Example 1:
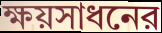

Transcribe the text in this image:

ক্ষয়সাধনের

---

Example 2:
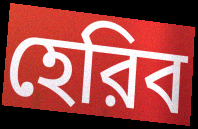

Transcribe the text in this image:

হেরিব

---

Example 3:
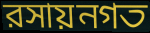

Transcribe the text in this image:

রসায়নগত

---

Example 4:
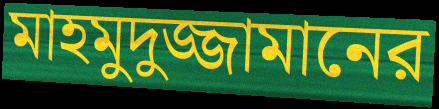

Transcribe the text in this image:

মাহমুদুজ্জামানের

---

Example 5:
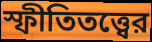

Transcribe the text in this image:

স্ফীতিতত্ত্বের